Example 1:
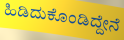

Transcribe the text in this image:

ಹಿಡಿದುಕೊಂಡಿದ್ದೇನೆ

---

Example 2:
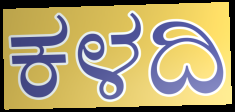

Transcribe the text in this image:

ಕಳದಿ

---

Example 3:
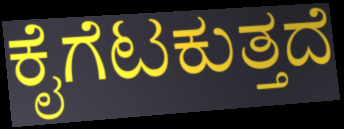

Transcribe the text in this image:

ಕೈಗೆಟಕುತ್ತದೆ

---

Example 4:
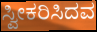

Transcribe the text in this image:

ಸ್ವೀಕರಿಸಿದವ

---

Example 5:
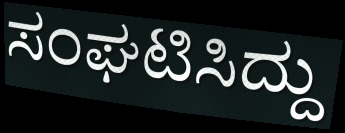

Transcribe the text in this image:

ಸಂಘಟಿಸಿದ್ದು